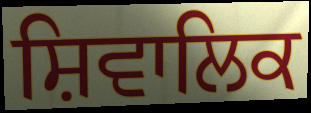
ਸ਼ਿਵਾਲਿਕ